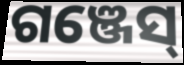
ଗଞ୍ଜେସ୍